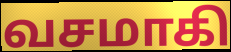
வசமாகி